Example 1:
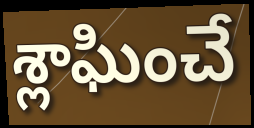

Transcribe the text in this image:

శ్లాఘించే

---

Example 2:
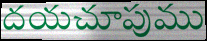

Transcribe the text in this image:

దయచూపుము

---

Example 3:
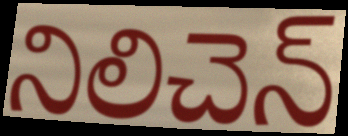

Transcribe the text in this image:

నిలిచెన్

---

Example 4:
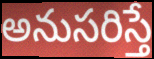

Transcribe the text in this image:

అనుసరిస్తే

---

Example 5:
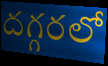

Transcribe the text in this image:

దగ్గరలో